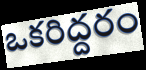
ఒకరిద్దరం